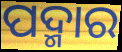
ପଦ୍ମାର